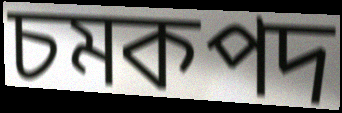
চমকপদ